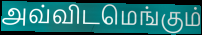
அவ்விடமெங்கும்